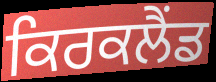
ਕਿਰਕਲੈਂਡ